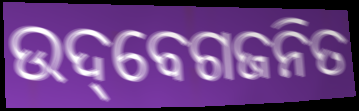
ଉଦ୍‌ବେଗଜନିତ